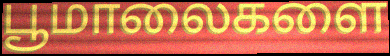
பூமாலைகளை